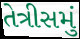
તેત્રીસમું